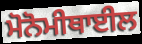
ਮੋਨੋਮੀਥਾਈਲ